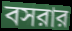
বসরার